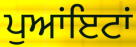
ਪੁਆਂਇਟਾਂ